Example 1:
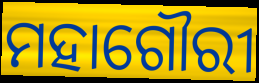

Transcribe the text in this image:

ମହାଗୌରୀ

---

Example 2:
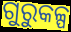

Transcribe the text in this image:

ଗୁରୁକଳ୍ପ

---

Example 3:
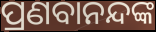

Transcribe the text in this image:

ପ୍ରଣବାନନ୍ଦଙ୍କ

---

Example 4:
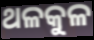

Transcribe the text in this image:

ଥଳକୁଳ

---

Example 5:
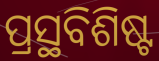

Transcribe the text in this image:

ପ୍ରସ୍ଥବିଶିଷ୍ଟ